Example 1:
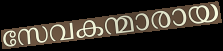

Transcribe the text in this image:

സേവകന്മാരായ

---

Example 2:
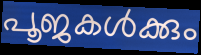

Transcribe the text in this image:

പൂജകൾക്കും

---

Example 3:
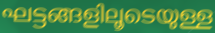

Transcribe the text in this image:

ഘട്ടങ്ങളിലൂടെയുള്ള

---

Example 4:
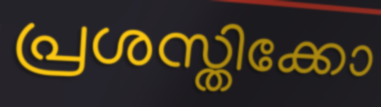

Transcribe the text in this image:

പ്രശസ്തിക്കോ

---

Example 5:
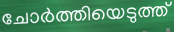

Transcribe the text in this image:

ചോർത്തിയെടുത്ത്